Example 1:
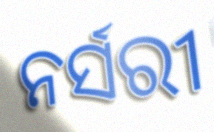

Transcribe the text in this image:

ନର୍ସରୀ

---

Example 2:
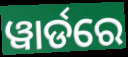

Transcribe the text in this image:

ୱାର୍ଡରେ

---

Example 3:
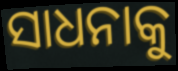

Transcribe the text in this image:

ସାଧନାକୁ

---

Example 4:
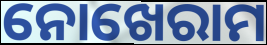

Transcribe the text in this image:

ନୋଖେରାମ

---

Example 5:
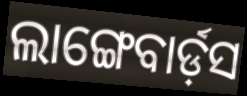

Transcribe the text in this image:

ଲାଙ୍ଗେବାର୍ଡ଼ସ